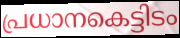
പ്രധാനകെട്ടിടം